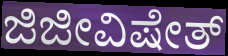
ಜಿಜೀವಿಷೇತ್